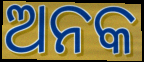
ଅନକ